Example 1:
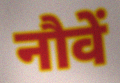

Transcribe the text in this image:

नौवें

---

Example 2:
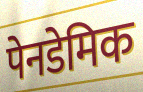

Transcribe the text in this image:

पेनडेमिक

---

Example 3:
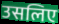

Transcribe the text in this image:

उसलिए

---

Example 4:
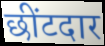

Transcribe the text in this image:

छींटदार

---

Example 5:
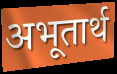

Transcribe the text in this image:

अभूतार्थ